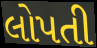
લોપતી